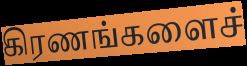
கிரணங்களைச்